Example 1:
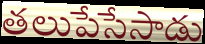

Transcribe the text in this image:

తలుపేసేసాడు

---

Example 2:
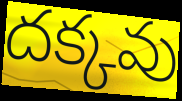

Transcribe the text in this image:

దక్కవు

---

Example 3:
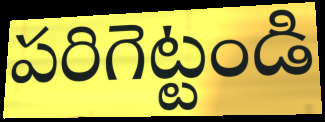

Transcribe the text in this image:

పరిగెట్టండి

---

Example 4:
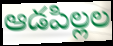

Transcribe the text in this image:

ఆడపిల్లల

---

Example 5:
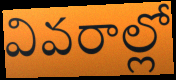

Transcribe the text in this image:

వివరాల్లో